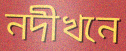
নদীখনে